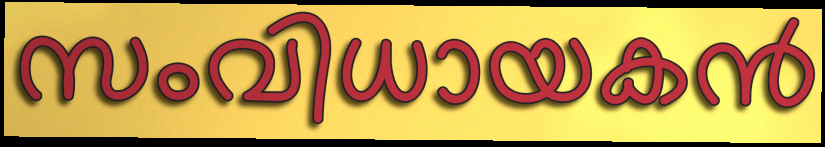
സംവിധായകൻ